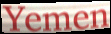
Yemen